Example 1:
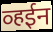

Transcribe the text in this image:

व्हईन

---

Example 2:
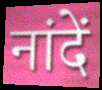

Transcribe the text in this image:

नांदें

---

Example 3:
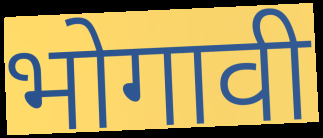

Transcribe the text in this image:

भोगावी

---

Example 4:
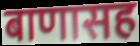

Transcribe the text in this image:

बाणासह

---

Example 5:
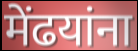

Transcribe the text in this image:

मेंढयांना